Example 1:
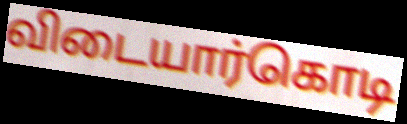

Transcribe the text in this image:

விடையார்கொடி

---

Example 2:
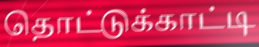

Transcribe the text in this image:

தொட்டுக்காட்டி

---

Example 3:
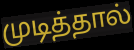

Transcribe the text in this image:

முடித்தால்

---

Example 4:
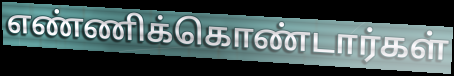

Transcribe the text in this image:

எண்ணிக்கொண்டார்கள்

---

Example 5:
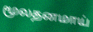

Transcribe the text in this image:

மூலதனமாய்